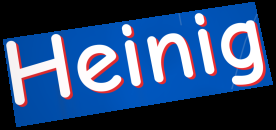
Heinig